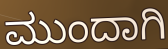
ಮುಂದಾಗಿ